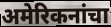
अमेरिकनांचा